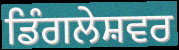
ਡਿੰਗਲੇਸ਼ਵਰ